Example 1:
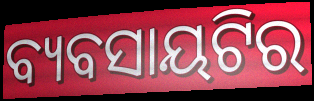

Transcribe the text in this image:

ବ୍ୟବସାୟଟିର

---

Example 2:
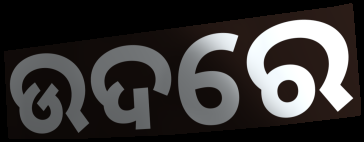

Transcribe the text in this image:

ଉଦରେ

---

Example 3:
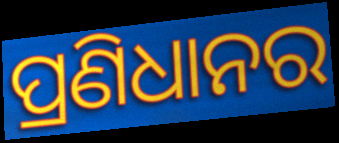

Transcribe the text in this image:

ପ୍ରଣିଧାନର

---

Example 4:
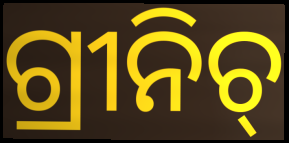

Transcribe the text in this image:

ଗ୍ରୀନିଚ୍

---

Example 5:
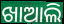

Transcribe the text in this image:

ଖାଆଲି